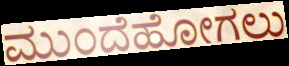
ಮುಂದೆಹೋಗಲು